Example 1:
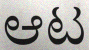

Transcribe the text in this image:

ಆಟ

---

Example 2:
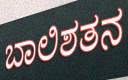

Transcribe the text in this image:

ಬಾಲಿಶತನ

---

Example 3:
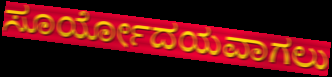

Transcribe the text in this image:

ಸೂರ್ಯೋದಯವಾಗಲು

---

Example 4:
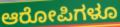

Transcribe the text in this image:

ಆರೋಪಿಗಳೂ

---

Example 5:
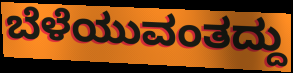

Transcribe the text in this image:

ಬೆಳೆಯುವಂತದ್ದು